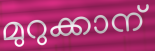
മുറുക്കാന്